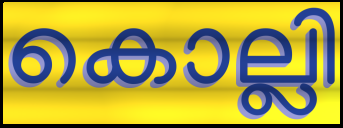
കൊല്ലി